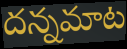
దన్నమాట